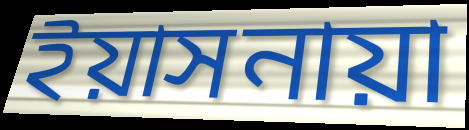
ইয়াসনায়া